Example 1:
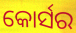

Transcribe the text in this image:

କୋର୍ସର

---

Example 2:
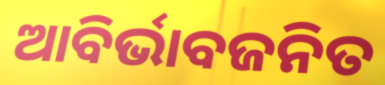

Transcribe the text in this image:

ଆବିର୍ଭାବଜନିତ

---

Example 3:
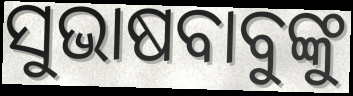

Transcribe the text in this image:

ସୁଭାଷବାବୁଙ୍କୁ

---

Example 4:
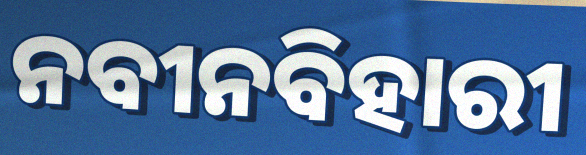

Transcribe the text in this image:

ନବୀନବିହାରୀ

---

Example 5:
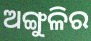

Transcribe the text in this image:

ଅଙ୍ଗୁଳିର